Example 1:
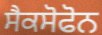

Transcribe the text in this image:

ਸੈਕਸੋਫੋਨ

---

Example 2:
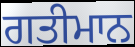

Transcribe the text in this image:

ਗਤੀਮਾਨ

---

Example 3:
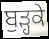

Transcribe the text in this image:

ਬੁੜ੍ਹਕੇ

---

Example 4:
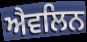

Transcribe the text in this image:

ਐਵਲਿਨ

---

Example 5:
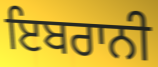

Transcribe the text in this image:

ਇਬਰਾਨੀ